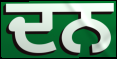
ਦਨ